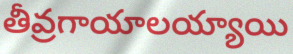
తీవ్రగాయాలయ్యాయి